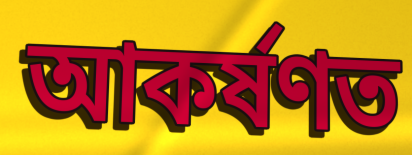
আকৰ্ষণত